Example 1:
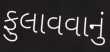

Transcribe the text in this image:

ફુલાવવાનું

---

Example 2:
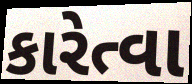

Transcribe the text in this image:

કારેત્વા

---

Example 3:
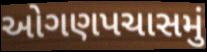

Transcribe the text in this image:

ઓગણપચાસમું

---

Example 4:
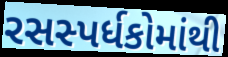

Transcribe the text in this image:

રસસ્પર્ધકોમાંથી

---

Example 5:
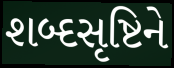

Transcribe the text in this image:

શબ્દસૃષ્ટિને